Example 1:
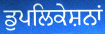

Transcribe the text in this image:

ਡੁਪਲਿਕੇਸ਼ਨਾਂ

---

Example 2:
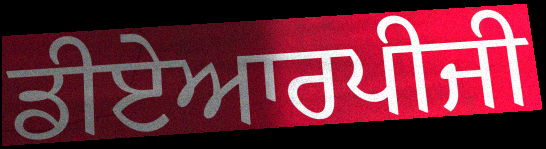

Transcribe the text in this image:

ਡੀਏਆਰਪੀਜੀ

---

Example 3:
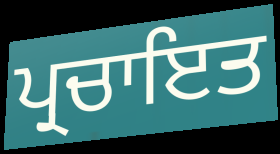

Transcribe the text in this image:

ਪ੍ਰਚਾਇਤ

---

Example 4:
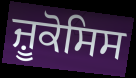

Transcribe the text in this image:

ਜ਼ੂਕੋਸਿਸ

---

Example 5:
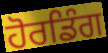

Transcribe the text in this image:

ਹੋਰਡਿੰਗ